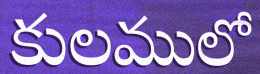
కులములో